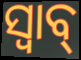
ସ୍ବାବ୍